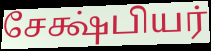
சேக்ஷ்பியர்